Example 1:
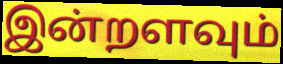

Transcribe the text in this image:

இன்றளவும்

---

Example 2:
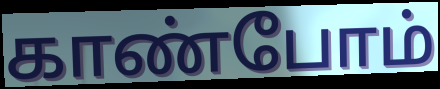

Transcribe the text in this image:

காண்போம்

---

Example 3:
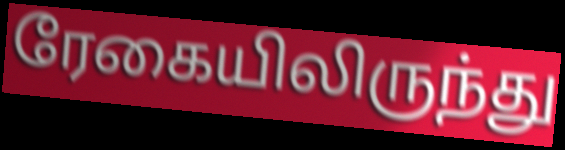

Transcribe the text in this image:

ரேகையிலிருந்து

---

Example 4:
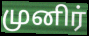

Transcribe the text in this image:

முனிர்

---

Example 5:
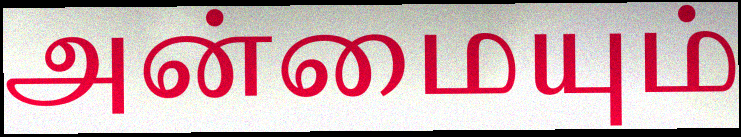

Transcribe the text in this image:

அன்மையும்